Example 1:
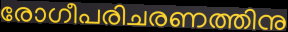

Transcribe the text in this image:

രോഗീപരിചരണത്തിനു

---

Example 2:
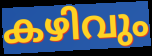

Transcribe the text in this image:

കഴിവും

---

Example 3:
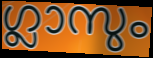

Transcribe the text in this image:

ഗ്ലാസും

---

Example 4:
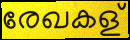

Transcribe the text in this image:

രേഖകള്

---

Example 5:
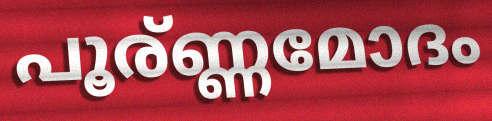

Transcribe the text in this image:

പൂര്ണ്ണമോദം